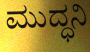
ಮುದ್ಧನಿ